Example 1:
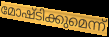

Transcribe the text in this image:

മോഷ്ടിക്കുമെന്ന്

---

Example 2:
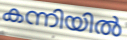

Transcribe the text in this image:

കന്നിയിൽ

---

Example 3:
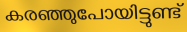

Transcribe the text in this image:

കരഞ്ഞുപോയിട്ടുണ്ട്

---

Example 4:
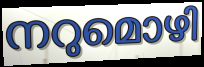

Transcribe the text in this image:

നറുമൊഴി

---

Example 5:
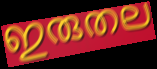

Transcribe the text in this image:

ഇരുതല